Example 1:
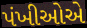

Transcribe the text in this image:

પંખીઓએ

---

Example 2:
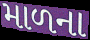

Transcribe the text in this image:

માળના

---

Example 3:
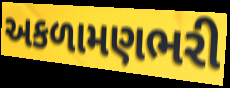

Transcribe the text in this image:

અકળામણભરી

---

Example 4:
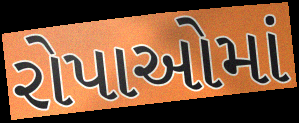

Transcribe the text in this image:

રોપાઓમાં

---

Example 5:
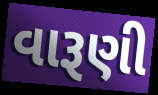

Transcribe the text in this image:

વારૂણી